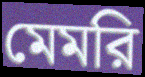
মেমরি